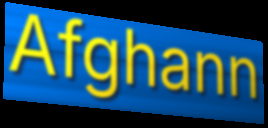
Afghann